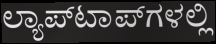
ಲ್ಯಾಪ್‌ಟಾಪ್‌ಗಳಲ್ಲಿ